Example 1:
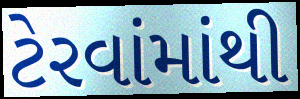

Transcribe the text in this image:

ટેરવાંમાંથી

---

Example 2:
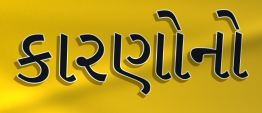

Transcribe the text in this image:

કારણોનો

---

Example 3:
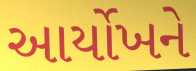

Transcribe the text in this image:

આર્યોખને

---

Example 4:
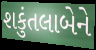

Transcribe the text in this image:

શકુંતલાબેને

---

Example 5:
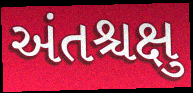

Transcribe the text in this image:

અંતશ્ચક્ષુ